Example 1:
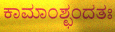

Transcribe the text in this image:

ಕಾಮಾಂಶ್ಛಂದತಃ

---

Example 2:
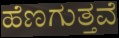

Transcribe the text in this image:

ಹೆಣಗುತ್ತವೆ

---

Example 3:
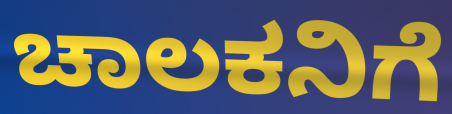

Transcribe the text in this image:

ಚಾಲಕನಿಗೆ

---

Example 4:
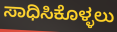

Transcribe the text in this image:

ಸಾಧಿಸಿಕೊಳ್ಳಲು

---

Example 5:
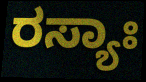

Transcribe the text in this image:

ರಸ್ಯಾಃ